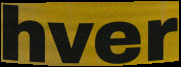
hver